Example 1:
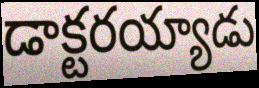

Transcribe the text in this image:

డాక్టరయ్యాడు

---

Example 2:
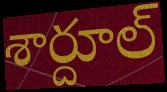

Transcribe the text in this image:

శార్దూల్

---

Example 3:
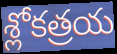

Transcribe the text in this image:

శ్లోకత్రయ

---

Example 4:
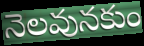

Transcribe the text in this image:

నెలవునకుం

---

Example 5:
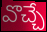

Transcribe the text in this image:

వొచ్చే